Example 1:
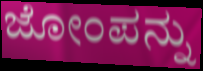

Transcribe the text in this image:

ಜೋಂಪನ್ನು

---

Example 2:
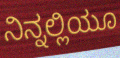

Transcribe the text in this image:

ನಿನ್ನಲ್ಲಿಯೂ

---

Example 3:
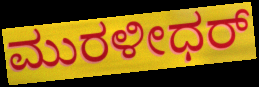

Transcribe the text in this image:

ಮುರಳೀಧರ್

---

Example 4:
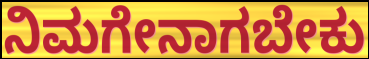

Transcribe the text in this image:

ನಿಮಗೇನಾಗಬೇಕು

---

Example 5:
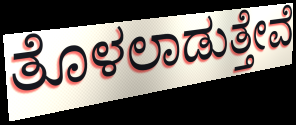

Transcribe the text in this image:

ತೊಳಲಾಡುತ್ತೇವೆ